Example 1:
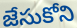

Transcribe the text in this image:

జేసుకోని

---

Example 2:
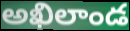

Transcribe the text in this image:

అఖిలాండ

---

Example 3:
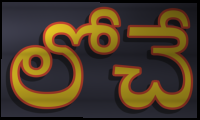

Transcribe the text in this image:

లోచే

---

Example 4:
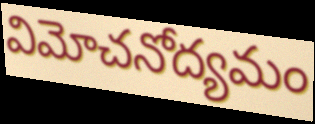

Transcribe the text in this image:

విమోచనోద్యమం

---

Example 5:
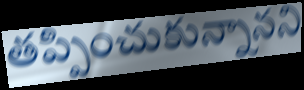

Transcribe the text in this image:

తప్పించుకున్నానని